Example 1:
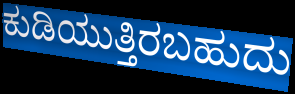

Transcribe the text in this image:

ಕುಡಿಯುತ್ತಿರಬಹುದು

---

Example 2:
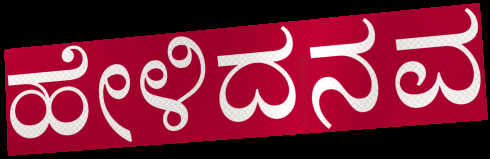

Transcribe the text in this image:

ಹೇಳಿದನವ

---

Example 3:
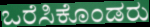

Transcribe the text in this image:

ಒರೆಸಿಕೊಂಡರು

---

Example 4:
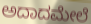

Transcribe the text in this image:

ಅದಾದಮೇಲೆ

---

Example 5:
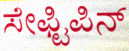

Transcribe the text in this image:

ಸೇಫ್ಟಿಪಿನ್